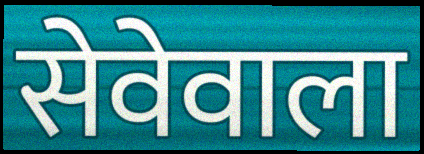
सेवेवाला